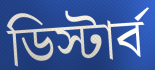
ডিস্টার্ব